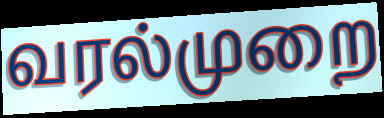
வரல்முறை